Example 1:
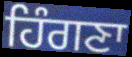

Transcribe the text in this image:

ਹਿੰਗਣਾ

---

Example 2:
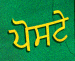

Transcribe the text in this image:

ਪੋਸਟੇ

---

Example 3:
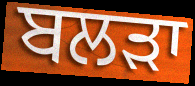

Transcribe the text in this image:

ਬਲੜਾ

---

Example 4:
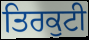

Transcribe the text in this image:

ਤਿਰਕੁਟੀ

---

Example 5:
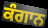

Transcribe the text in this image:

ਕੰਗਾਨ